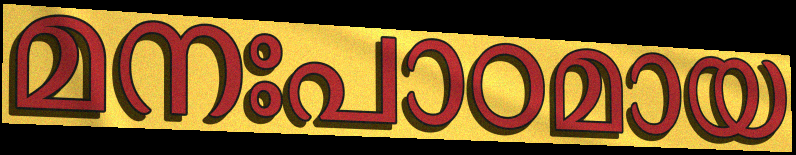
മനഃപാഠമായ